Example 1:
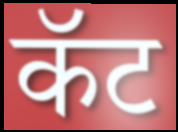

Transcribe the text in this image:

कॅट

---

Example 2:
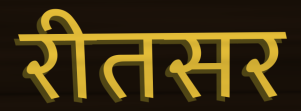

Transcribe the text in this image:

रीतसर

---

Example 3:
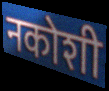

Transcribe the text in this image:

नकोशी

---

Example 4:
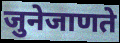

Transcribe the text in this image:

जुनेजाणते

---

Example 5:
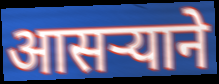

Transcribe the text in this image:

आसर्‍याने